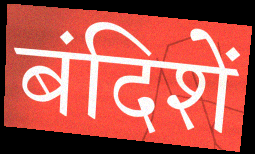
बंदिशें